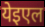
येइएल